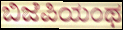
ಬಿಜೆಪಿಯಂಥ